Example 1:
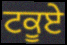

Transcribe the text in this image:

ਟਕੂਏ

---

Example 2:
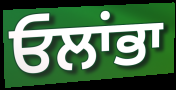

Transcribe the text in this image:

ਓਲਾਂਭਾ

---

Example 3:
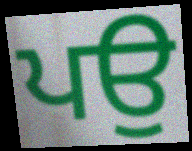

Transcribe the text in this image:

ਪਉ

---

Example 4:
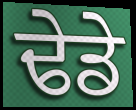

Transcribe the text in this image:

ਢੇਡੇ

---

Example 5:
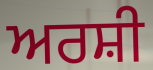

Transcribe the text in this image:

ਅਰਸ਼ੀ